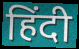
हिंदी